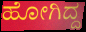
ಹೋಗಿದ್ದ